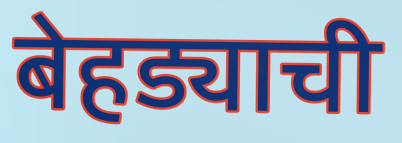
बेहड्याची